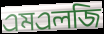
এমএলজি